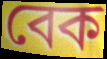
বেক